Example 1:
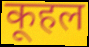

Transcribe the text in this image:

कूहल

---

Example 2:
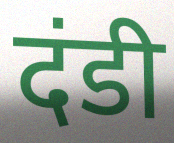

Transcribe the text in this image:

दंडी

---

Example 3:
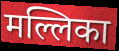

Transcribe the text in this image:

मल्लिका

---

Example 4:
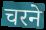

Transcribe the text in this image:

चरने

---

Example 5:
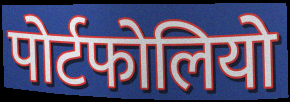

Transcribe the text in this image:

पोर्टफोलियो